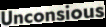
Unconsious